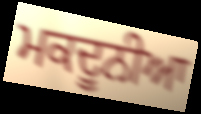
ਮਕਦੂਨੀਆ